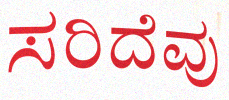
ಸರಿದೆವು